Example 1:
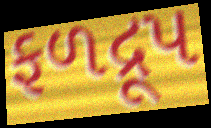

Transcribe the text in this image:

ફળદ્રૂપ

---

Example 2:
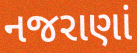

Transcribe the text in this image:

નજરાણાં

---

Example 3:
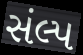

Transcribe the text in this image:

સંલ્પ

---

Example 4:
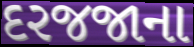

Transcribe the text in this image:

દરજજાના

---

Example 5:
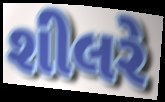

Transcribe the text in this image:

શીલરે